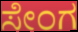
ಸೇಂಗ